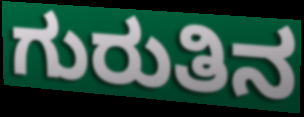
ಗುರುತಿನ